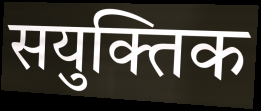
सयुक्तिक